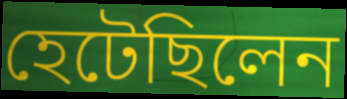
হেটেছিলেন